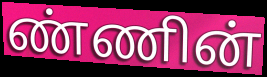
ண்ணின்